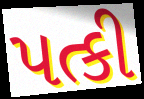
પત્કી